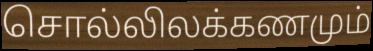
சொல்லிலக்கணமும்